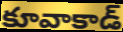
కూవాకాడ్